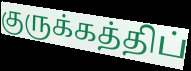
குருக்கத்திப்